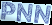
PNN